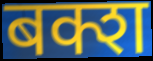
बक्श